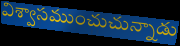
విశ్వాసముంచుచున్నాడు